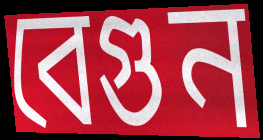
বেগুন